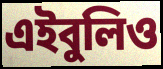
এইবুলিও